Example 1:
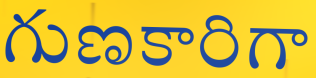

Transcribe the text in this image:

గుణకారిగా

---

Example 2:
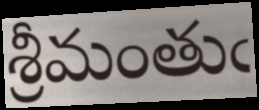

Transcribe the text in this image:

శ్రీమంతుఁ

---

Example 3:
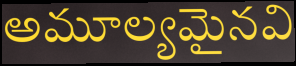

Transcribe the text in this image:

అమూల్యమైనవి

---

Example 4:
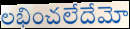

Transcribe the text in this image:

లభించలేదేమో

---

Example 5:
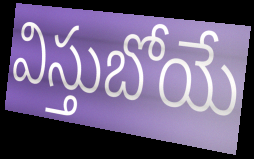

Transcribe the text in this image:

విస్తుబోయే